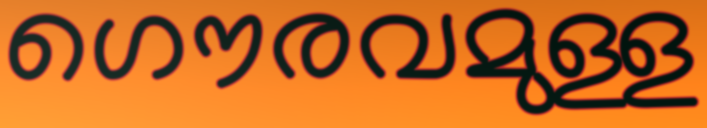
ഗൌരവമുള്ള